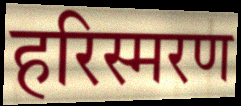
हरिस्मरण